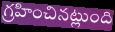
గ్రహించినట్లుంది